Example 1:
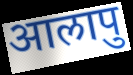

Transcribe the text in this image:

आलापु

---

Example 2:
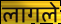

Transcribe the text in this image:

लागले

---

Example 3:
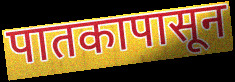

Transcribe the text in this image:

पातकापासून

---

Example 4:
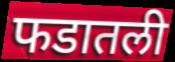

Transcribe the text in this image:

फडातली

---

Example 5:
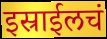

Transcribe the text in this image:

इस्राईलचं